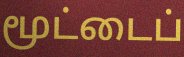
மூட்டைப்